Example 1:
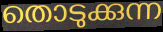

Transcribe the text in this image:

തൊടുക്കുന്ന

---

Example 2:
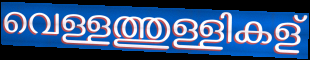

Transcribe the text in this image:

വെള്ളത്തുള്ളികള്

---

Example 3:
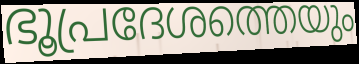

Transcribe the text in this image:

ഭൂപ്രദേശത്തെയും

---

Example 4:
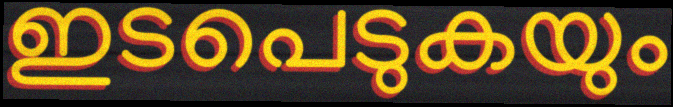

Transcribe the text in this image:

ഇടപെടുകയും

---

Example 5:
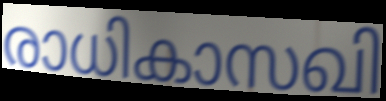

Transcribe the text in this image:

രാധികാസഖി